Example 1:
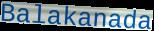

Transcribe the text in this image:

Balakanada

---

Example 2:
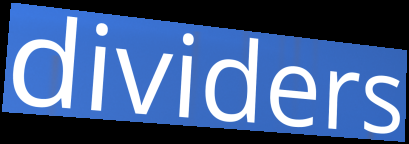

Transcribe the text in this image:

dividers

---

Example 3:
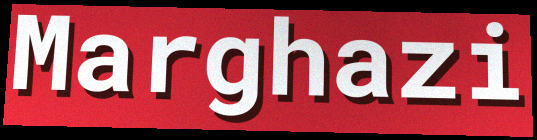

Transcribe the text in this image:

Marghazi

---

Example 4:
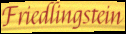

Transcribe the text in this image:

Friedlingstein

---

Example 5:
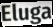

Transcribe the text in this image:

Eluga